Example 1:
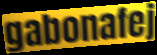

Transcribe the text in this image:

gabonafej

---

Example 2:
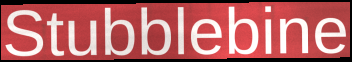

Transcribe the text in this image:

Stubblebine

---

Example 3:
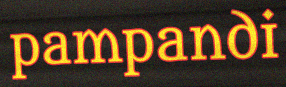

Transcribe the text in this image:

pampandi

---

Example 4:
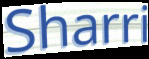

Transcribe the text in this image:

Sharri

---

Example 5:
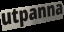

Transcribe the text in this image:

utpanna